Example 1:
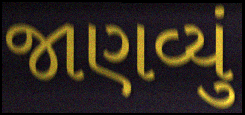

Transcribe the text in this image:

જાણવ્યું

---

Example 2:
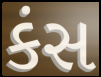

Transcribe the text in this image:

કંસ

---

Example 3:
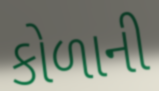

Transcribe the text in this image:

કોળાની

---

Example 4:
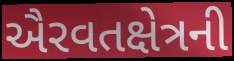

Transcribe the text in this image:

ઐરવતક્ષેત્રની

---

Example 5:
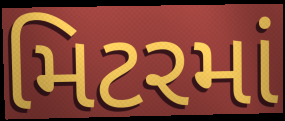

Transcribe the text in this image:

મિટરમાં